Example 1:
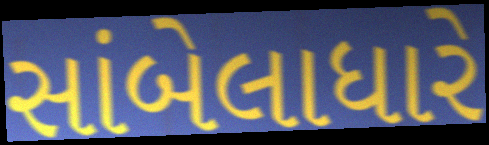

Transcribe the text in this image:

સાંબેલાધારે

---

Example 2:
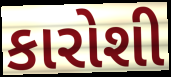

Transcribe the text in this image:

કારોશી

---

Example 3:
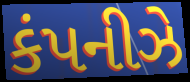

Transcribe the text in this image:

કંપનીઝે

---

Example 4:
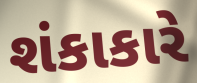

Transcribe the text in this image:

શંકાકારે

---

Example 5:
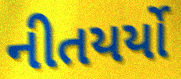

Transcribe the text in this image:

નીતયર્યો